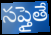
సప్తైతే